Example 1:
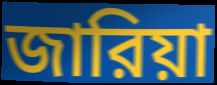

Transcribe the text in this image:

জারিয়া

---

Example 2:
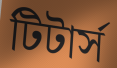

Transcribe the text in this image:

টিটার্স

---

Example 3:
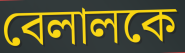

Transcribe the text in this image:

বেলালকে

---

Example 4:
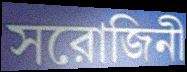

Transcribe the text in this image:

সরোজিনী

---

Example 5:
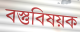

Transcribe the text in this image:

বস্তুবিষয়ক